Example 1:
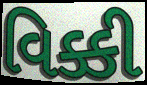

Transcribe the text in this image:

વિક્કી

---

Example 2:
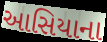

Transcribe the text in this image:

આસિયાના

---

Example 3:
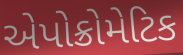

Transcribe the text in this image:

એપોક્રોમેટિક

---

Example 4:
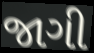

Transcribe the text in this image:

જાગી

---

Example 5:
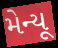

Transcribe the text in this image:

મેન્યૂ